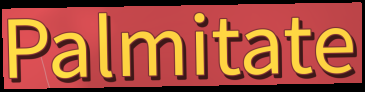
Palmitate